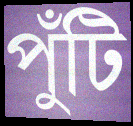
পুঁটি